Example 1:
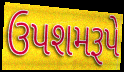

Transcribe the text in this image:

ઉપશમરૂપે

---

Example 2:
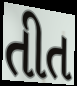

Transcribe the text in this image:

તીત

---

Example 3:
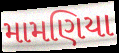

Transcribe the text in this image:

મામણિયા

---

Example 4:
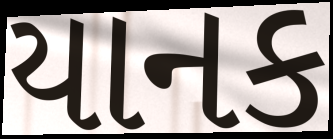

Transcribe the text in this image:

યાનક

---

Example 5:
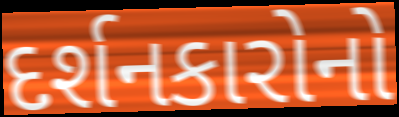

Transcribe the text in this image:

દર્શનકારોનો